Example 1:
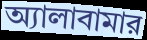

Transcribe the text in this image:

অ্যালাবামার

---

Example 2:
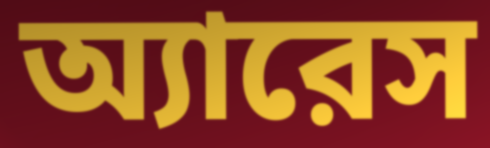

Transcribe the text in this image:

অ্যারেস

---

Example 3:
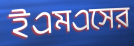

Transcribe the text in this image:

ইএমএসের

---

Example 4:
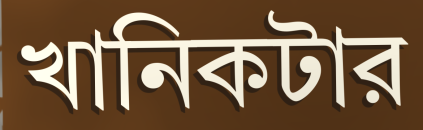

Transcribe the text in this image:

খানিকটার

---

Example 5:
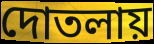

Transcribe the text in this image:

দোতলায়